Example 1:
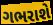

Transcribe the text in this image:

ગભરાશે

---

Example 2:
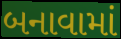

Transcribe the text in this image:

બનાવામાં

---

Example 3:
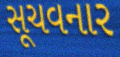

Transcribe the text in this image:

સૂચવનાર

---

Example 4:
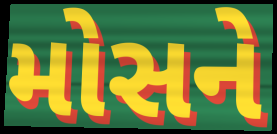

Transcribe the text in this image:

મોસને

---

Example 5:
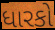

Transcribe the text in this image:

ધારકો